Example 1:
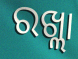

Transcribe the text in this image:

ରଖ୍ଲା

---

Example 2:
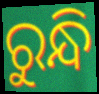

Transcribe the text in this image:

ରୁନ୍ଧି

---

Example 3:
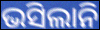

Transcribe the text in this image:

ଭସିଲାନି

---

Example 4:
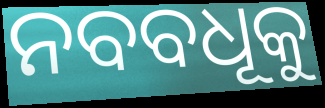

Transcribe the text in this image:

ନବବଧୂକୁ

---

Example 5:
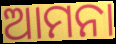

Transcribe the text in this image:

ଆମନା